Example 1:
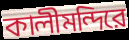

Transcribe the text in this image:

কালীমন্দিরে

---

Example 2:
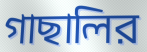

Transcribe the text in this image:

গাছালির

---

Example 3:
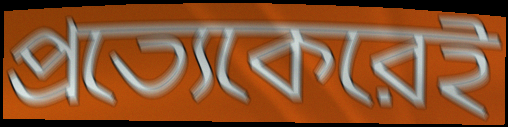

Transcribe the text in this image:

প্রত্যেকেরেই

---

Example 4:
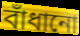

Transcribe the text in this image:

বাঁধানো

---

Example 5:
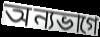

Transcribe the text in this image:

অন্যভাগে